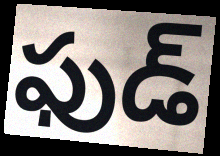
ఫుడ్